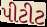
પીટીટ